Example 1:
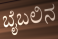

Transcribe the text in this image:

ಬೈಬಲಿನ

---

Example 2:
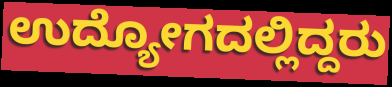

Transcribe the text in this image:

ಉದ್ಯೋಗದಲ್ಲಿದ್ದರು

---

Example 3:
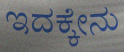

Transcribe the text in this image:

ಇದಕ್ಕೇನು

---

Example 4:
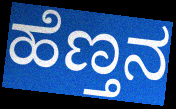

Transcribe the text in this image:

ಹೆಣ್ತನ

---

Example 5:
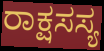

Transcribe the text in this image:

ರಾಕ್ಷಸಸ್ಯ